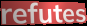
refutes